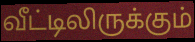
வீட்டிலிருக்கும்